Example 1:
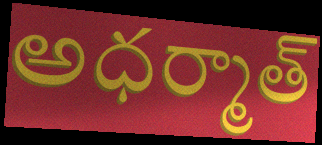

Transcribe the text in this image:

అధర్మాత్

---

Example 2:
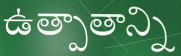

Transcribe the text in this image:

ఉత్పాతాన్ని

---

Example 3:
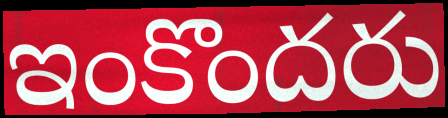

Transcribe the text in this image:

ఇంకొందరు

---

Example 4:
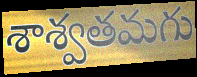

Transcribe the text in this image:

శాశ్వతమగు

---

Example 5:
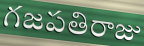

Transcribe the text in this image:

గజపతిరాజు